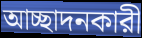
আচ্ছাদনকারী